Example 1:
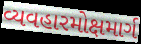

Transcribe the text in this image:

વ્યવહારમોક્ષમાર્ગ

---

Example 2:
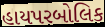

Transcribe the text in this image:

હાયપરબોલિક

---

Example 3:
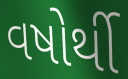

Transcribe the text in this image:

વષોર્થી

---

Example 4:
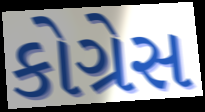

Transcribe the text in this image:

કોગ્રેસ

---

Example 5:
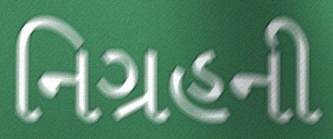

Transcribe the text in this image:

નિગ્રહની